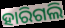
ହାରିଗଲି